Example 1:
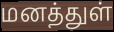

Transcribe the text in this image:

மனத்துள்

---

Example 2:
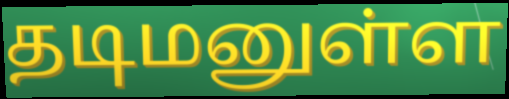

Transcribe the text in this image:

தடிமனுள்ள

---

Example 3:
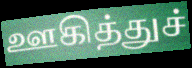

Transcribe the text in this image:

ஊகித்துச்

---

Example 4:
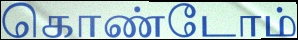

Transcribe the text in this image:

கொண்டோம்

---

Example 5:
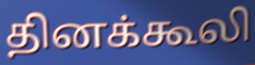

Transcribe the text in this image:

தினக்கூலி